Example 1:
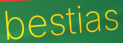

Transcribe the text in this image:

bestias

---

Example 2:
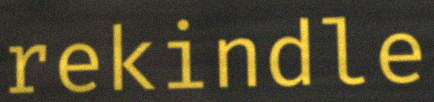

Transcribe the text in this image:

rekindle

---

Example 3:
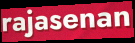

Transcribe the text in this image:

rajasenan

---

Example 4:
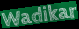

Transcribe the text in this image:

Wadikar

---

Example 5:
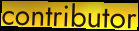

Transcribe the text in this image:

contributor